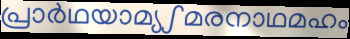
പ്രാർഥയാമ്യഽമരനാഥമഹം